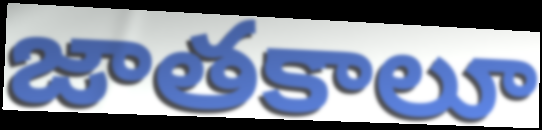
జాతకాలూ